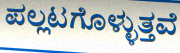
ಪಲ್ಲಟಗೊಳ್ಳುತ್ತವೆ